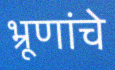
भ्रूणांचे